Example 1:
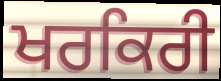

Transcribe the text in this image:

ਖਰਕਿਰੀ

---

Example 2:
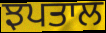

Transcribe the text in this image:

ਝਪਤਾਲ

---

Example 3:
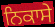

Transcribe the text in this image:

ਨਿਕਾਸੇ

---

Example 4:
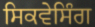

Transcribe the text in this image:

ਸਿਕਵੇਸਿੰਗ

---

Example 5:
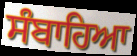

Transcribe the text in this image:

ਸੰਬਾਹਿਆ